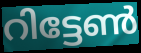
റിട്ടേൺ